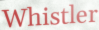
Whistler